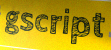
gscript